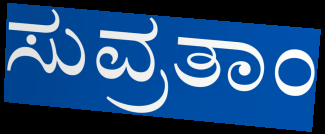
ಸುವ್ರತಾಂ